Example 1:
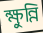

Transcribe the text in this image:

ক্ষুন্নি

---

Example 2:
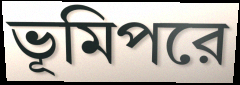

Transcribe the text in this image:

ভূমিপরে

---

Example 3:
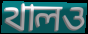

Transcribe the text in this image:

থালও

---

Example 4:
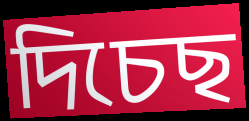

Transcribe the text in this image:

দিচেছ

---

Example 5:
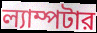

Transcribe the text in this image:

ল্যাম্পটার